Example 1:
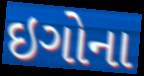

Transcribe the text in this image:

ઇગોના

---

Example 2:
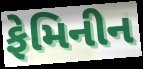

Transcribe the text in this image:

ફેમિનીન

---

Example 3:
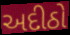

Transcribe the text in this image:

અદીઠો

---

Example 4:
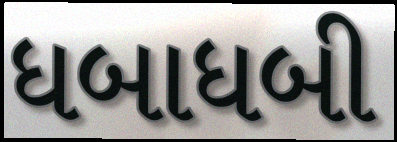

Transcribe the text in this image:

ધબાધબી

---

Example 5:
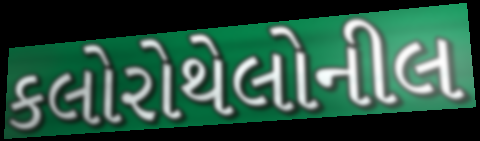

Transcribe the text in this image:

કલોરોથેલોનીલ